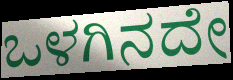
ಒಳಗಿನದೇ